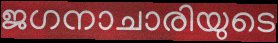
ജഗനാചാരിയുടെ